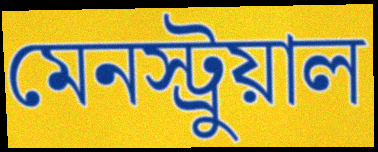
মেনস্ট্রুয়াল